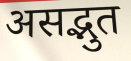
असद्भुत